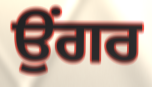
ਉਂਗਰ